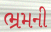
ભ્રમની